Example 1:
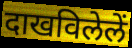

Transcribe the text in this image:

दाखविलेलें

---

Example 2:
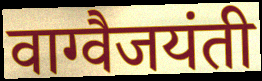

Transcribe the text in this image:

वाग्वैजयंती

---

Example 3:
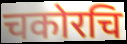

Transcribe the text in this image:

चकोरचि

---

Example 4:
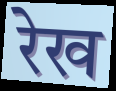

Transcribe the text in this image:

रेख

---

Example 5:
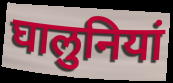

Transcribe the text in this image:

घालुनियां